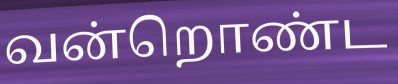
வன்றொண்ட